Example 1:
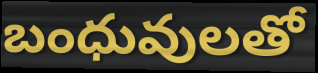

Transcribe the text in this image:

బంధువులతో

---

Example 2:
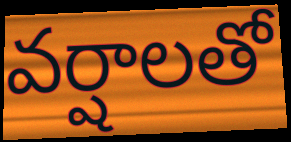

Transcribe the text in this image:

వర్షాలతో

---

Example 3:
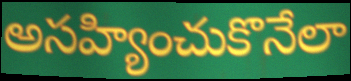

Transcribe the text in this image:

అసహ్యించుకొనేలా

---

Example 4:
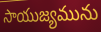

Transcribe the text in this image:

సాయుజ్యమును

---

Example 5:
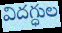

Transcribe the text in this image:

విదగ్ధుల